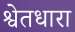
श्वेतधारा